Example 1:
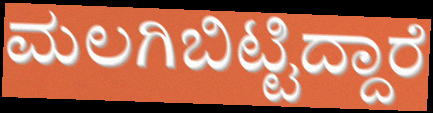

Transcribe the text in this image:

ಮಲಗಿಬಿಟ್ಟಿದ್ದಾರೆ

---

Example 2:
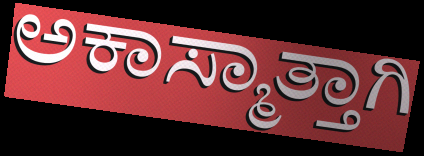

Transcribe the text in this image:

ಅಕಾಸ್ಮಾತ್ತಾಗಿ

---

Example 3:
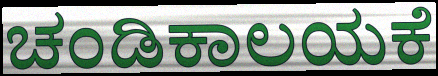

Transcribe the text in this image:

ಚಂಡಿಕಾಲಯಕೆ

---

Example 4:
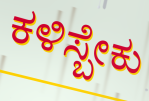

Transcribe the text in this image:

ಕಳಿಸ್ಬೇಕು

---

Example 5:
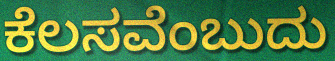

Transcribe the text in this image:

ಕೆಲಸವೆಂಬುದು